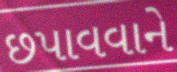
છપાવવાને